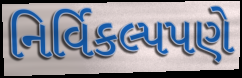
નિર્વિકલ્પપણે